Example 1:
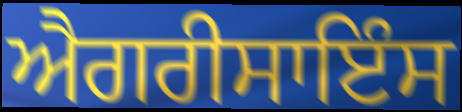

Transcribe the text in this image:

ਐਗਰੀਸਾਇੰਸ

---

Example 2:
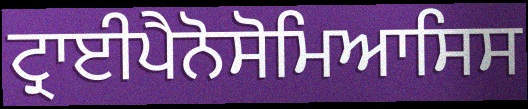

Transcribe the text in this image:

ਟ੍ਰਾਈਪੈਨੋਸੋਮਿਆਸਿਸ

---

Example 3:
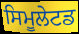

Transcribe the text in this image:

ਸਿਮੂਲੇਟਡ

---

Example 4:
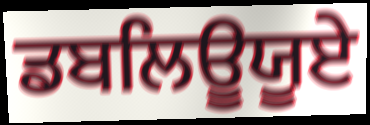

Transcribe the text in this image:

ਡਬਲਿਊਯੂਏ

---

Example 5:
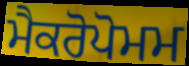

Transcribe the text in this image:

ਮੈਕਰੋਪੋਮਮ